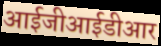
आईजीआईडीआर